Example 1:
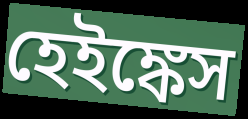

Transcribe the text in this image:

হেইঙ্কেস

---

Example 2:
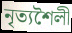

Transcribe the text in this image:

নৃত্যশৈলী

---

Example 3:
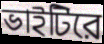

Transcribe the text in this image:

ভাইটিরে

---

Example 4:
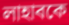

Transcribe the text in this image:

লাহাবকে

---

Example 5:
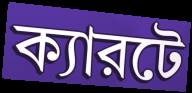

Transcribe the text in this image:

ক্যারটে